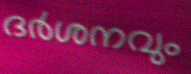
ദർശനവും